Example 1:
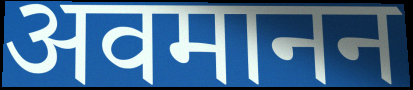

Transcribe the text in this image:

अवमानन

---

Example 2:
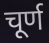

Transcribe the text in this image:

चूर्ण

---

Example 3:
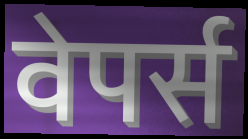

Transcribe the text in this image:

वेपर्स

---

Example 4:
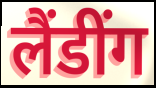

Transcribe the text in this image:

लैंडींग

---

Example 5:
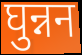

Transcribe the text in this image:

घुन्नन